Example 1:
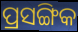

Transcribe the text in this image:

ପ୍ରସଙ୍ଗିକ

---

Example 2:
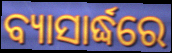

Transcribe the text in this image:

ବ୍ୟାସାର୍ଦ୍ଧରେ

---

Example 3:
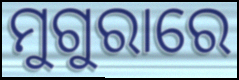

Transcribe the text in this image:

ମୁଗୁରାରେ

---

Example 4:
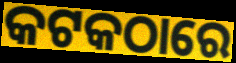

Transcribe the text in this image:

କଟକଠାରେ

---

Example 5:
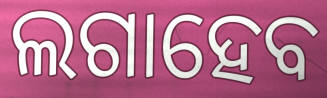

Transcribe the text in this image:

ଲଗାହେବ